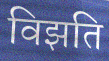
विझति